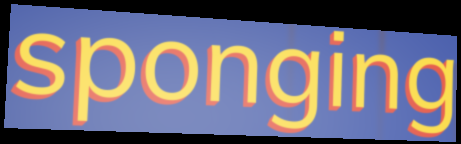
sponging